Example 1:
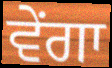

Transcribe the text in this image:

ਵੇਂਗਾ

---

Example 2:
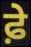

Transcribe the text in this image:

ਫ਼ੇ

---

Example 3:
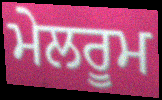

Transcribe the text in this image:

ਮੇਲਰੂਮ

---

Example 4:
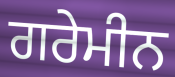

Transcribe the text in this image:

ਗਰੇਮੀਨ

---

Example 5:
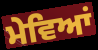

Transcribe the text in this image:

ਮੇਵਿਆਂ